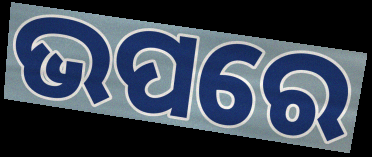
ଭପରେ